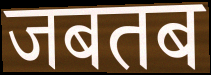
जबतब